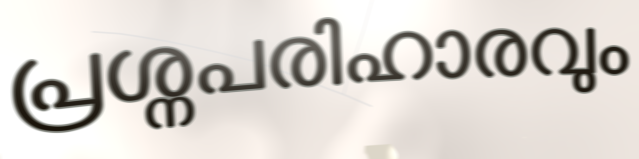
പ്രശ്നപരിഹാരവും